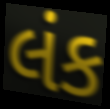
લંક